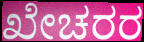
ಖೇಚರರ